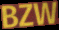
BZW